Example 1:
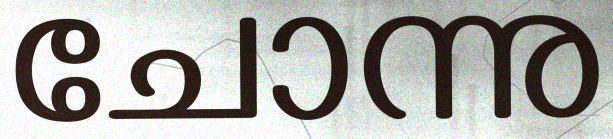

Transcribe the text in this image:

ചോന്നു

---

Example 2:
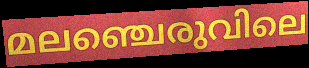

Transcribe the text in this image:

മലഞ്ചെരുവിലെ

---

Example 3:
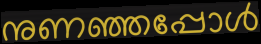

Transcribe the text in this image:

നുണഞ്ഞപ്പോൾ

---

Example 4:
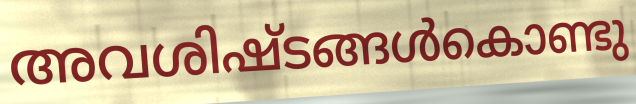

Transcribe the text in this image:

അവശിഷ്ടങ്ങൾകൊണ്ടു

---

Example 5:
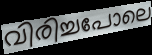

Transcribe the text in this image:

വിരിച്ചപോലെ